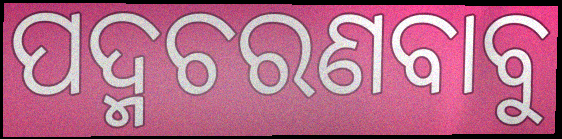
ପଦ୍ମଚରଣବାବୁ